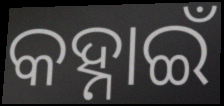
କହ୍ନାଇଁ